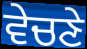
ਵੇਚਣੇ